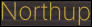
Northup